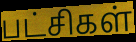
பட்சிகள்